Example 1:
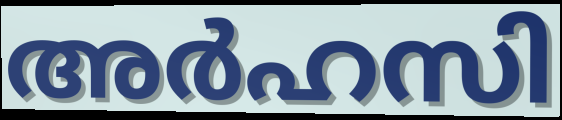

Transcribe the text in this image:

അർഹസി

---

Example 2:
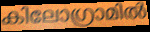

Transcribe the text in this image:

കിലോഗ്രാമിൽ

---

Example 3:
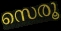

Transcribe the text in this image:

സെരൂ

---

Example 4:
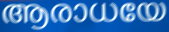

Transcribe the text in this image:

ആരാധയേ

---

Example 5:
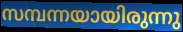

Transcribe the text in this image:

സമ്പന്നയായിരുന്നു